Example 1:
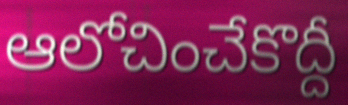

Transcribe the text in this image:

ఆలోచించేకొద్దీ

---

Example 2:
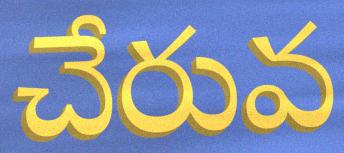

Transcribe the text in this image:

చేరువ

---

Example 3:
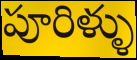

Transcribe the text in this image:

పూరిళ్ళు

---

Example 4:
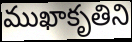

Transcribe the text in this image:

ముఖాకృతిని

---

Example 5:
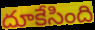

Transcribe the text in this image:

దూకేసింది